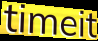
timeit